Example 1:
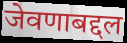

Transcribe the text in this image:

जेवणाबद्दल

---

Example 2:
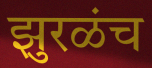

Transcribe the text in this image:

झुरळंच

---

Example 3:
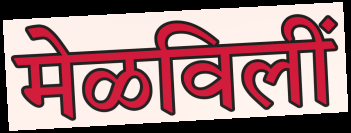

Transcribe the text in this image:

मेळविलीं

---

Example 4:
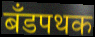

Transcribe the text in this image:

बँडपथक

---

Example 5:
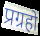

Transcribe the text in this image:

प्रग्रहो